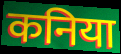
कनिया